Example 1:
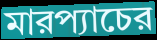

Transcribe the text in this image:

মারপ্যাচের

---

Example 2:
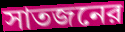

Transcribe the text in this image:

সাতজনের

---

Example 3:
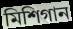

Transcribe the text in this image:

মিশিগান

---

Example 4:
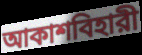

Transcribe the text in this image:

আকাশবিহারী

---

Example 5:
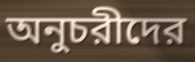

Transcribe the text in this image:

অনুচরীদের